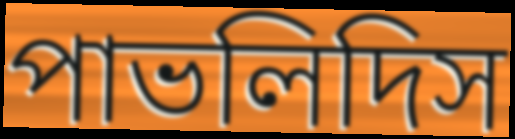
পাভলিদিস